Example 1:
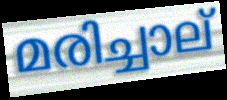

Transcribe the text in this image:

മരിച്ചാല്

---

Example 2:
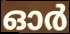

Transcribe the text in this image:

ഓർ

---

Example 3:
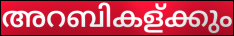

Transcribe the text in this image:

അറബികള്ക്കും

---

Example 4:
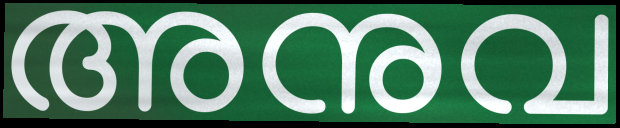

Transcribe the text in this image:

അനുവ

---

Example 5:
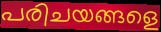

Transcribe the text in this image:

പരിചയങ്ങളെ